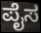
ಪೈಸ